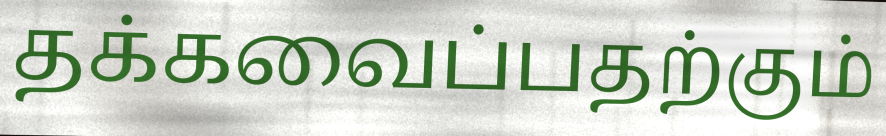
தக்கவைப்பதற்கும்